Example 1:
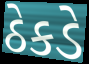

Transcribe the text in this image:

ઠેકડે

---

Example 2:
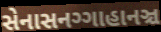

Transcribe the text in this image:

સેનાસનગ્ગાહાનઞ્ચ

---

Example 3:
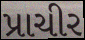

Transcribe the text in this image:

પ્રાચીર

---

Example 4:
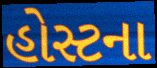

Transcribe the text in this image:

હોસ્ટના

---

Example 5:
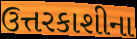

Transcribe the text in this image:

ઉત્તરકાશીના